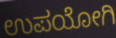
ಉಪಯೋಗಿ